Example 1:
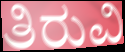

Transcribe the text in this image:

ತಿರುವಿ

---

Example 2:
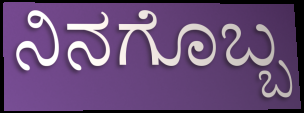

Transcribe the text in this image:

ನಿನಗೊಬ್ಬ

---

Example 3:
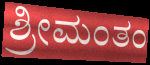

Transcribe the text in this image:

ಶ್ರೀಮಂತಂ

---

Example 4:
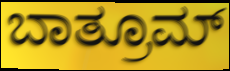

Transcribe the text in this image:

ಬಾತ್ರೂಮ್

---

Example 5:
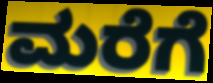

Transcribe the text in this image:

ಮರೆಗೆ